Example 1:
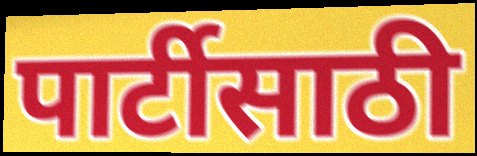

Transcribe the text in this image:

पार्टीसाठी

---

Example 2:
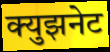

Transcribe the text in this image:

क्युझनेट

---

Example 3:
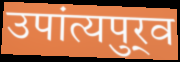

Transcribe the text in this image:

उपांत्यपुर्व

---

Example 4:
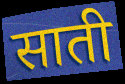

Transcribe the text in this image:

साती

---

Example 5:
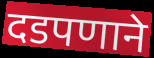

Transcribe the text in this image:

दडपणाने